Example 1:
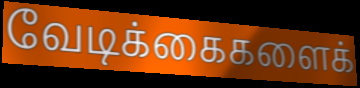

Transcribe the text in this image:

வேடிக்கைகளைக்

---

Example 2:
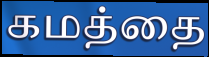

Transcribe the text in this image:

கமத்தை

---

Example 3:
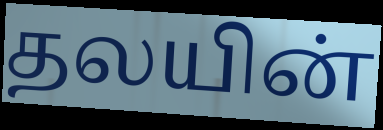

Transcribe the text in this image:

தலயின்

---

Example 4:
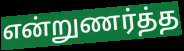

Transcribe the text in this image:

என்றுணர்த்த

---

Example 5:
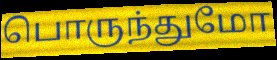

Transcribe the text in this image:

பொருந்துமோ